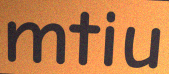
mtiu